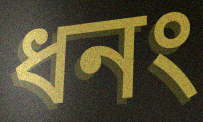
ধনং